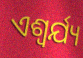
ଏଶ୍ଵର୍ଯ୍ୟ